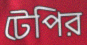
টেপির